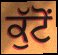
ਕੁੱਟੋਂ